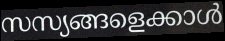
സസ്യങ്ങളെക്കാൾ